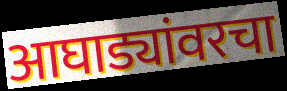
आघाड्यांवरचा